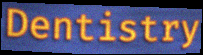
Dentistry